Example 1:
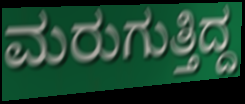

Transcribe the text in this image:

ಮರುಗುತ್ತಿದ್ದ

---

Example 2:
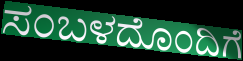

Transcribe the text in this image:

ಸಂಬಳದೊಂದಿಗೆ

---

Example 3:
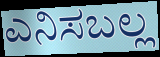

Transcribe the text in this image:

ಎನಿಸಬಲ್ಲ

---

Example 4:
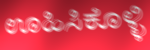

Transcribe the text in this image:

ಊಹಿಸಿಕೊಳ್ಳಿ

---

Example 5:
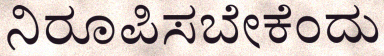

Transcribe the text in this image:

ನಿರೂಪಿಸಬೇಕೆಂದು